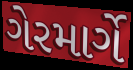
ગેરમાર્ગે